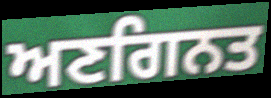
ਅਣਗਿਨਤ